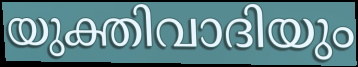
യുക്തിവാദിയും